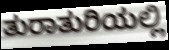
ತುರಾತುರಿಯಲ್ಲಿ